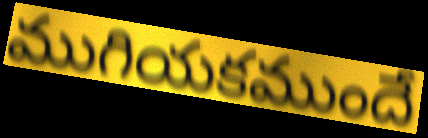
ముగియకముందే